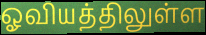
ஓவியத்திலுள்ள